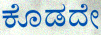
ಕೊಡದೇ